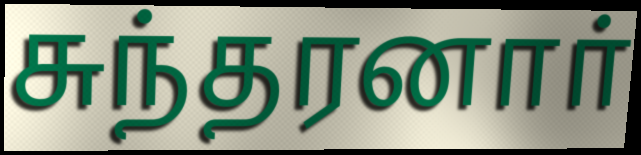
சுந்தரனார்